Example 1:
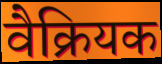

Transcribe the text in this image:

वैक्रियक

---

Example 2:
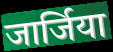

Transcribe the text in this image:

जार्जिया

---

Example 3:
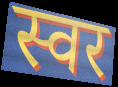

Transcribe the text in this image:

स्वर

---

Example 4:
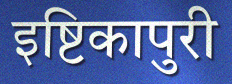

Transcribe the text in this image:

इष्टिकापुरी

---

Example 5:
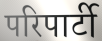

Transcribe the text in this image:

परिपार्टी